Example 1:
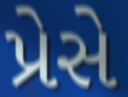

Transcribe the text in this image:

પ્રેસે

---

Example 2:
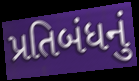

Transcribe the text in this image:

પ્રતિબંધનું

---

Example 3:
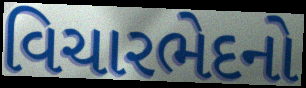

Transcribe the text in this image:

વિચારભેદનો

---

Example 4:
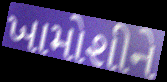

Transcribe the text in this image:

ખામોશીને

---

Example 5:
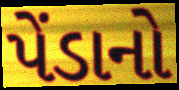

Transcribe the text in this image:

પેંડાનો